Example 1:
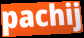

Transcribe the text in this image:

pachij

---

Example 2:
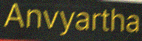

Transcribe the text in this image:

Anvyartha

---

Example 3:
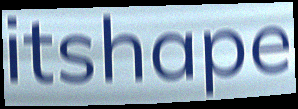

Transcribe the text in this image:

itshape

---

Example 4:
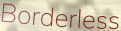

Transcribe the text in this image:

Borderless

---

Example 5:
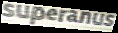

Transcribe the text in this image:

superanus